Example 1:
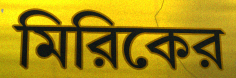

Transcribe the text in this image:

মিরিকের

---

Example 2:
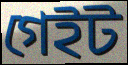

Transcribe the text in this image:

গেইট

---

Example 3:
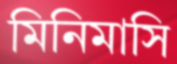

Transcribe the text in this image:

মিনিমাসি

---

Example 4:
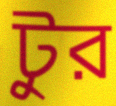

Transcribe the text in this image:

টুর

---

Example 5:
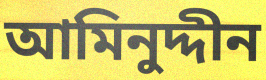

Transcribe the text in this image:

আমিনুদ্দীন